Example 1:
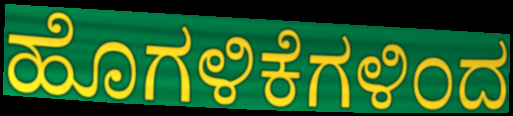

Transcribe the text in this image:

ಹೊಗಳಿಕೆಗಳಿಂದ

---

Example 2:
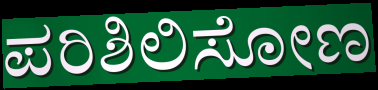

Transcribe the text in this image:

ಪರಿಶಿಲಿಸೋಣ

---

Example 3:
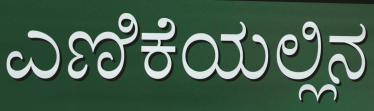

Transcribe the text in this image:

ಎಣಿಕೆಯಲ್ಲಿನ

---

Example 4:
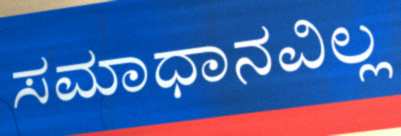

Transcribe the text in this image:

ಸಮಾಧಾನವಿಲ್ಲ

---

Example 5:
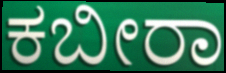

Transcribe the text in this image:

ಕಬೀರಾ